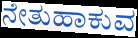
ನೇತುಹಾಕುವ